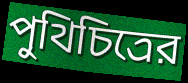
পুথিচিত্রের